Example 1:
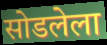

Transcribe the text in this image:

सोडलेला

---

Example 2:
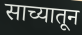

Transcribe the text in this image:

साच्यातून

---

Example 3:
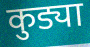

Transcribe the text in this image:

कुड्या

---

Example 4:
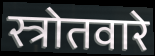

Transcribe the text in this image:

स्त्रोतवारे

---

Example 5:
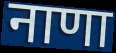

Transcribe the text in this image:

नाणा